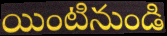
యింటినుండి